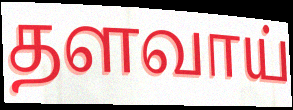
தளவாய்